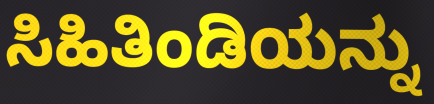
ಸಿಹಿತಿಂಡಿಯನ್ನು